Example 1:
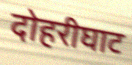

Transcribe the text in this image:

दोहरीघाट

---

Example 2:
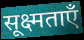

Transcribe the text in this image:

सूक्ष्मताएँ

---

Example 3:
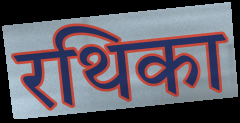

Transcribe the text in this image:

रथिका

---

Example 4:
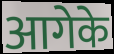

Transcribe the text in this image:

आगेके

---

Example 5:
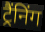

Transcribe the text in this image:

ट्रैंनिंग